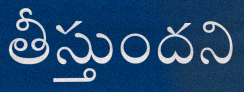
తీస్తుందని